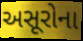
અસૂરોના